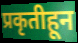
प्रकृतीहून